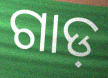
ଗାଡ଼